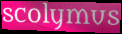
scolymus